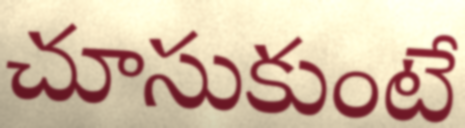
చూసుకుంటే